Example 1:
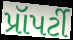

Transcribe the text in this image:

પ્રૉપર્ટી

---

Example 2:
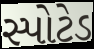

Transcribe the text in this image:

સ્પોટેડ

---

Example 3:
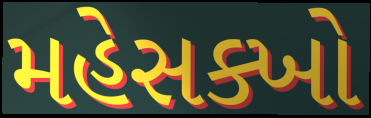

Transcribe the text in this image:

મહેસક્ખો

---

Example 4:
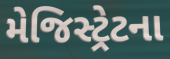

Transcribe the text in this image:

મેજિસ્ટ્રેટના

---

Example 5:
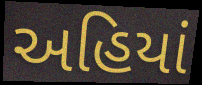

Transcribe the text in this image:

અહિયાં